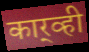
कार्व्ही